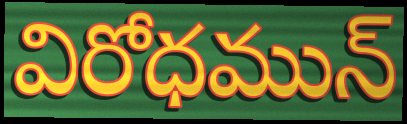
విరోధమున్